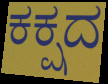
ಕಕ್ಷದ